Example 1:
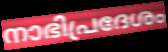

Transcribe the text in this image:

നാഭിപ്രദേശം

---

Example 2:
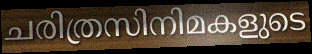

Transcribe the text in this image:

ചരിത്രസിനിമകളുടെ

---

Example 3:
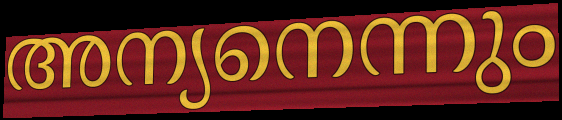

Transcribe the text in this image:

അന്യനെന്നും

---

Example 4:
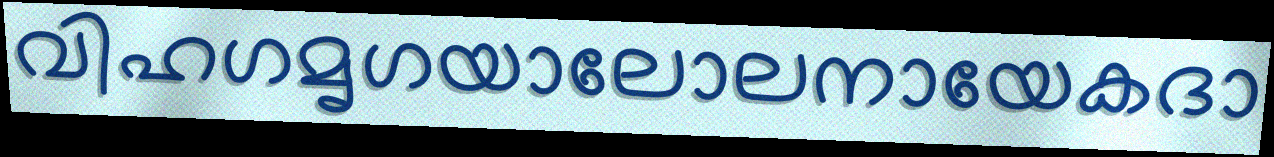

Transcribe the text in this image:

വിഹഗമൃഗയാലോലനായേകദാ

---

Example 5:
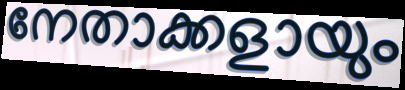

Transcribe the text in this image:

നേതാക്കളായും